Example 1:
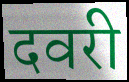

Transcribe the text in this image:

दवरी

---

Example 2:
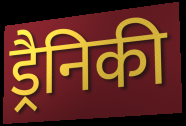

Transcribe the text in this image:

ड्रैनिकी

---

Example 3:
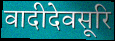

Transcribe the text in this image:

वादीदेवसूरि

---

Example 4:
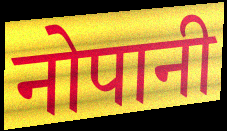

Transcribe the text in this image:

नोपानी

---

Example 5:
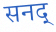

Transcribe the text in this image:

सनद्